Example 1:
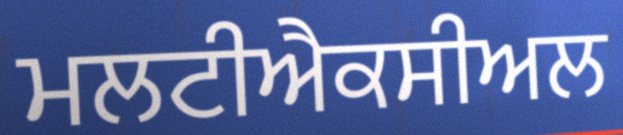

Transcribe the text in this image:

ਮਲਟੀਐਕਸੀਅਲ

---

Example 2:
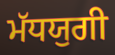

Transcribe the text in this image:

ਮੱਧਯੁਗੀ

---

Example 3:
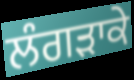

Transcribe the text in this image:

ਲੰਗੜਾਕੇ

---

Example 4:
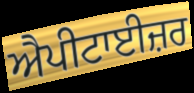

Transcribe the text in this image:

ਐਪੀਟਾਈਜ਼ਰ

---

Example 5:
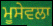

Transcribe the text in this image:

ਮੂਸੇਵਲਾ